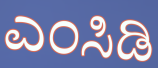
ಎಂಸಿಡಿ